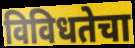
विविधतेचा